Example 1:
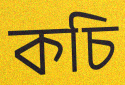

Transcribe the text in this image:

কচি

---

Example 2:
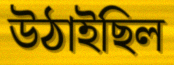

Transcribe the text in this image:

উঠাইছিল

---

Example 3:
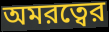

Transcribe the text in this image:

অমরত্বের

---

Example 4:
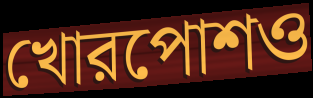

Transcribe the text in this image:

খোরপোশও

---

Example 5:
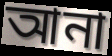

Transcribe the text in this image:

আনা